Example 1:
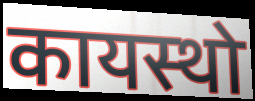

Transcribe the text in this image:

कायस्थो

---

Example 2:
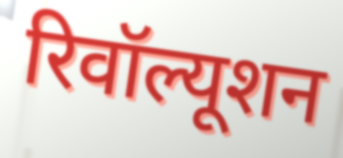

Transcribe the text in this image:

रिवॉल्यूशन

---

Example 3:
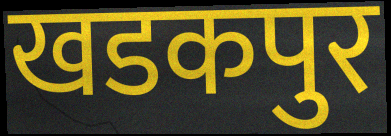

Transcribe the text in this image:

खडकपुर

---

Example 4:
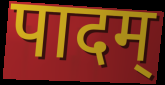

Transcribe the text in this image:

पादम्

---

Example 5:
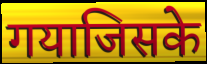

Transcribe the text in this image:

गयाजिसके